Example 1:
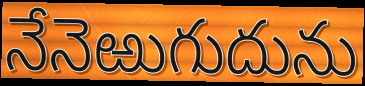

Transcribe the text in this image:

నేనెఱుగుదును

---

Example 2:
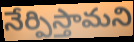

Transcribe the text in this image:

నేర్పిస్తామని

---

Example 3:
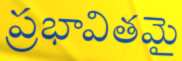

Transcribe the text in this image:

ప్రభావితమై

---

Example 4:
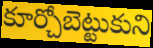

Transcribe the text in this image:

కూర్చోబెట్టుకుని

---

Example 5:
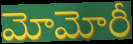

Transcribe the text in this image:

మోమోరీ